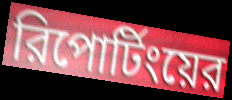
রিপোর্টিংয়ের